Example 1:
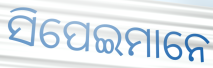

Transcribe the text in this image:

ସିପେଇମାନେ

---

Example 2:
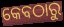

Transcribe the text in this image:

କେବଠାରୁ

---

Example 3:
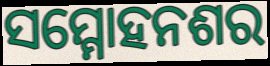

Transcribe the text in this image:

ସମ୍ମୋହନଶର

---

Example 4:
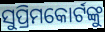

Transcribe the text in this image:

ସୁପ୍ରିମକୋର୍ଟଙ୍କୁ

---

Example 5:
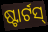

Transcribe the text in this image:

ଷ୍ଟାର୍ଟସ୍